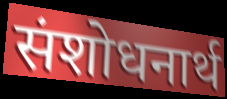
संशोधनार्थ